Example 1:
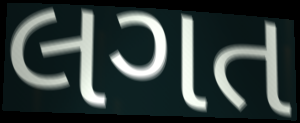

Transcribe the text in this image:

લગત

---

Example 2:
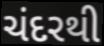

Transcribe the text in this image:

ચંદરથી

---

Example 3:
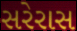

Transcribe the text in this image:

સરેરાસ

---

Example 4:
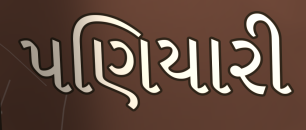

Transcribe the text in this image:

પણિયારી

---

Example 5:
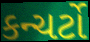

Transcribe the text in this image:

કન્ચર્ટો